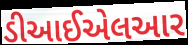
ડીઆઈએલઆર